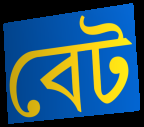
বেট